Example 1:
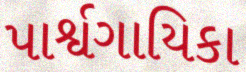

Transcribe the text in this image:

પાર્શ્વગાયિકા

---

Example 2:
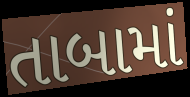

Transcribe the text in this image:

તાબામાં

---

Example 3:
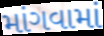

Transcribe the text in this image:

માંગવામાં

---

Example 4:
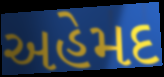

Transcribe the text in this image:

અહેમદ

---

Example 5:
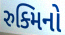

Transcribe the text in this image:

રુક્મિનો